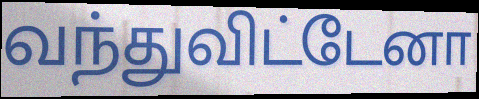
வந்துவிட்டேனா